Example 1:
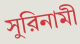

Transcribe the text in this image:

সুরিনামী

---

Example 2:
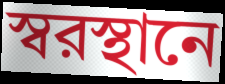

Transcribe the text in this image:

স্বরস্থানে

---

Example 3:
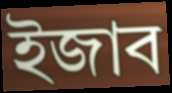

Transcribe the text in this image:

ইজাব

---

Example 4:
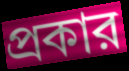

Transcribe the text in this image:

প্রকার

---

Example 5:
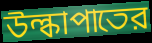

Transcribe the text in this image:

উল্কাপাতের